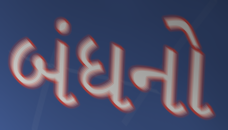
બંધનો